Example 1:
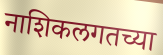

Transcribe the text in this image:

नाशिकलगतच्या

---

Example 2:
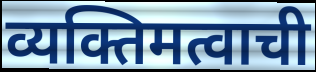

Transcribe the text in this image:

व्यक्तिमत्वाची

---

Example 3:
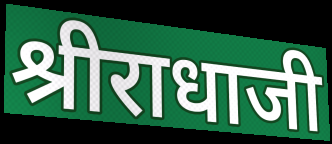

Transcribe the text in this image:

श्रीराधाजी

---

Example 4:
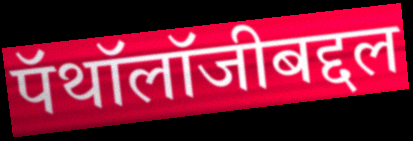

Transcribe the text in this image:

पॅथॉलॉजीबद्दल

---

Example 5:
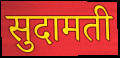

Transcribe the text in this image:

सुदामती